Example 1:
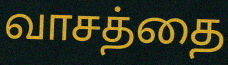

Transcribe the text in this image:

வாசத்தை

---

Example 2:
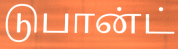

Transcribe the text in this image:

டுபான்ட்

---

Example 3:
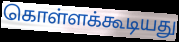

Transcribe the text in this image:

கொள்ளக்கூடியது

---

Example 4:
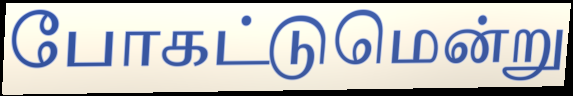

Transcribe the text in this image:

போகட்டுமென்று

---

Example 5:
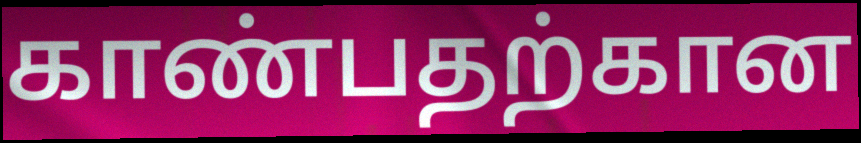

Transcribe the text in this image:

காண்பதற்கான